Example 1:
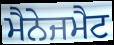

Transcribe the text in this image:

ਮੈਨੇਜਮੈਟ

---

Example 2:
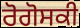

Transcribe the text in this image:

ਰੋਗੋਸਕੀ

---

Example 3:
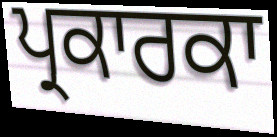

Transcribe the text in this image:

ਪ੍ਰਕਾਰਕਾ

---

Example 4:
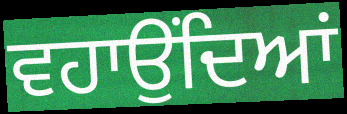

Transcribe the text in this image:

ਵਹਾਉਂਦਿਆਂ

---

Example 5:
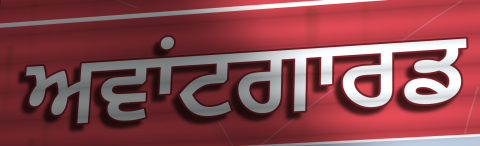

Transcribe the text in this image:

ਅਵਾਂਟਗਾਰਡ